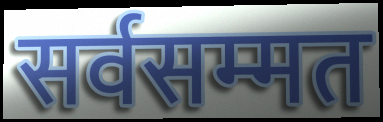
सर्वसम्मत